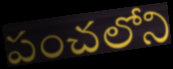
పంచలోని